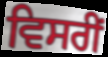
ਵਿਸਰੀਂ